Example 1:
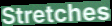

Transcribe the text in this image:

Stretches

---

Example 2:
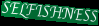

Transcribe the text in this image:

SELFISHNESS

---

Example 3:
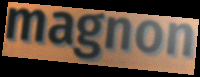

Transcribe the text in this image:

magnon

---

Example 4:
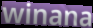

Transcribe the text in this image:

winana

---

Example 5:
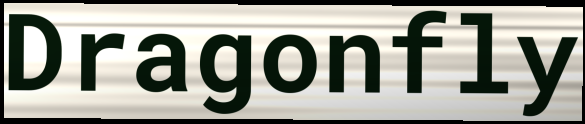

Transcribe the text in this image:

Dragonfly